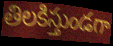
తిలకిస్తుండగా